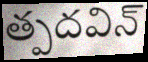
త్పదవిన్